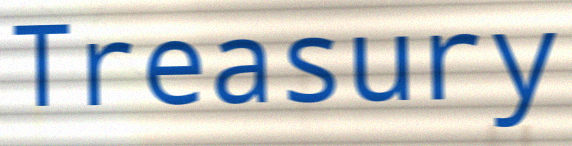
Treasury